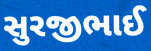
સુરજીભાઈ